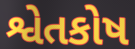
શ્વેતકોષ